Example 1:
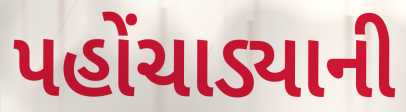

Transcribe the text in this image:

પહોંચાડ્યાની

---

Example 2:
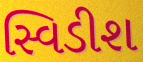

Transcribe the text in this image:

સ્વિડીશ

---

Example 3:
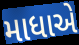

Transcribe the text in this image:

માધાએ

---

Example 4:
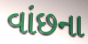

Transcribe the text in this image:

વાંછના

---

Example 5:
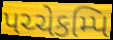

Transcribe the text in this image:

પચ્ચેકમ્પિ